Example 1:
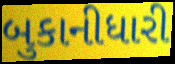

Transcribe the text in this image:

બુકાનીધારી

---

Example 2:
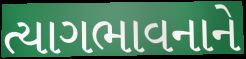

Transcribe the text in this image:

ત્યાગભાવનાને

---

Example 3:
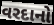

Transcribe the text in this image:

વરદાનો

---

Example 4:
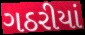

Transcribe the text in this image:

ગઠરીયાં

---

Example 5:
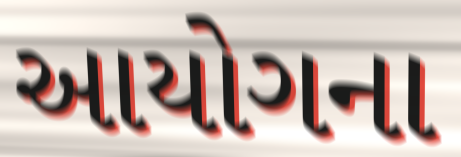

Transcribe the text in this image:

આયોગના